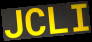
JCLI